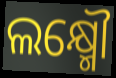
ଲକ୍ଷ୍ମୌ